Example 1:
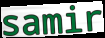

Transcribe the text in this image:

samir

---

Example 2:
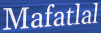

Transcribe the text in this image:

Mafatlal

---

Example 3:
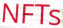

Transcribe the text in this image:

NFTs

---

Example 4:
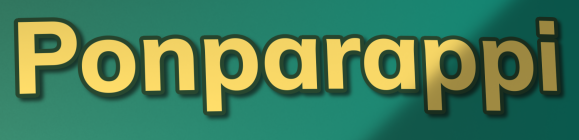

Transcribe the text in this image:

Ponparappi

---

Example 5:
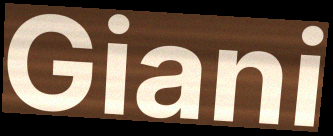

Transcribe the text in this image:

Giani